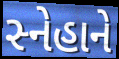
સ્નેહાને